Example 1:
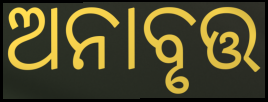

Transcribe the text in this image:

ଅନାବୃତ୍ତ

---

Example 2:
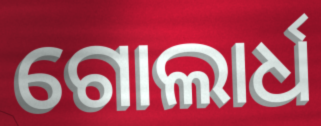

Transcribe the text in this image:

ଗୋଲାର୍ଧ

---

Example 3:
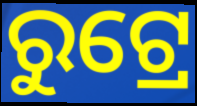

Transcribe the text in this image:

ରୁଟ୍ରେ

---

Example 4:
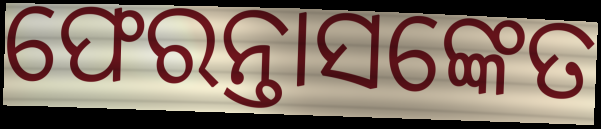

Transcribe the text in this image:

ଫେରନ୍ତାସଙ୍କେତ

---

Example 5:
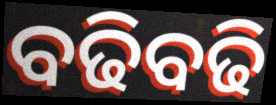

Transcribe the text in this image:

ବଢିବଢି